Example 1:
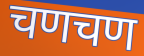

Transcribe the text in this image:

चणचण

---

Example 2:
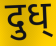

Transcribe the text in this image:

दुध्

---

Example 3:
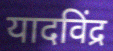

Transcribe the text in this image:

यादविंद्र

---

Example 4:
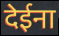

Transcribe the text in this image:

देईना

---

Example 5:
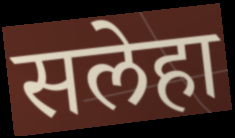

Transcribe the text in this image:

सलेहा